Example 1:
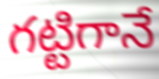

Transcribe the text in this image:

గట్టిగానే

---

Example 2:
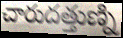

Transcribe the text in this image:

చారుదత్తుణ్ని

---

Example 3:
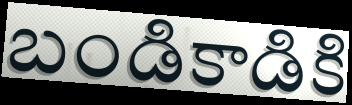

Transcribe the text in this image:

బండికాడికి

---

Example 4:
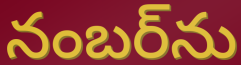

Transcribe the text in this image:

నంబర్‌ను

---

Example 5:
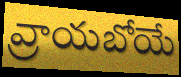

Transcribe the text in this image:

వ్రాయబోయే